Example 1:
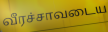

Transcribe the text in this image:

வீரச்சாவடைய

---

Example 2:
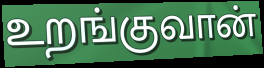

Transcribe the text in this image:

உறங்குவான்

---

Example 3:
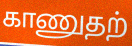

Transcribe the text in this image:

காணுதற்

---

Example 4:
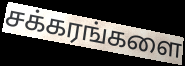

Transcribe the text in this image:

சக்கரங்களை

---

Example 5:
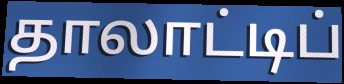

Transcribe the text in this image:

தாலாட்டிப்